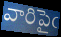
వారిపైఁ